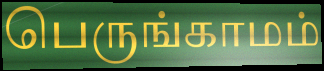
பெருங்காமம்